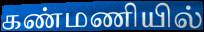
கண்மணியில்